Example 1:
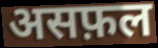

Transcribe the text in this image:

असफ़ल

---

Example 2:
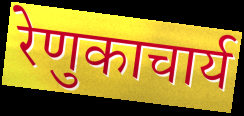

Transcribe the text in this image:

रेणुकाचार्य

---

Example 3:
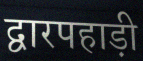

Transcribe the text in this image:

द्वारपहाड़ी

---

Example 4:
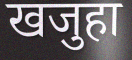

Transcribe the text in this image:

खजुहा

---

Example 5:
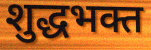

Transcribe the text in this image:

शुद्धभक्त